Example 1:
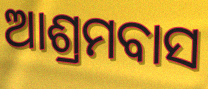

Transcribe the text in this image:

ଆଶ୍ରମବାସ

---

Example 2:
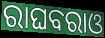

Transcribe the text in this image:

ରାଘବରାଓ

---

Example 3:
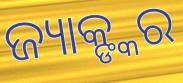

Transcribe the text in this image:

ଜ୍ୟାକ୍ଙ୍କର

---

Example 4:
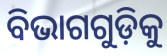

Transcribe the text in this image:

ବିଭାଗଗୁଡ଼ିକୁ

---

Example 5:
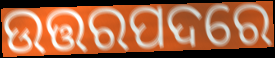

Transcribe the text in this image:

ଉତ୍ତରପଦରେ